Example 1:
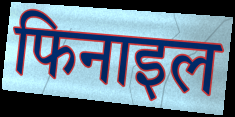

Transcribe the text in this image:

फिनाइल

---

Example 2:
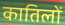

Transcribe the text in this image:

कातिलों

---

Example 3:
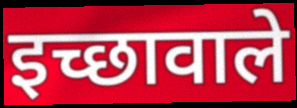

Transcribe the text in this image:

इच्छावाले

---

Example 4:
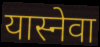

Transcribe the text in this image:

यास्नेवा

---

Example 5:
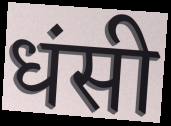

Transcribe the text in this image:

धंसी